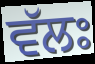
ਵੱਲਃ